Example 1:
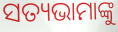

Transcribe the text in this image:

ସତ୍ୟଭାମାଙ୍କୁ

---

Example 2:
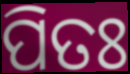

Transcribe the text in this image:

ପିତଃ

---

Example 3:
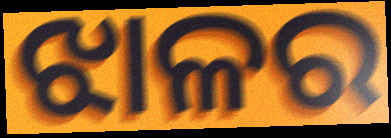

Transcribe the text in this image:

ଝାଳର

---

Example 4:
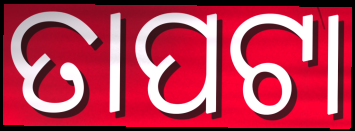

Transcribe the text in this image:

ତାପଟା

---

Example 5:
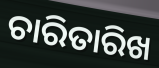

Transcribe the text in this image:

ଚାରିତାରିଖ